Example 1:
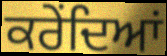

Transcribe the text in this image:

ਕਰੇਂਦਿਆਂ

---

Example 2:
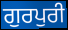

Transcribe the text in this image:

ਗੁਰਪੁਰੀ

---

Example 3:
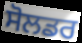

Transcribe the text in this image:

ਸੋਲਡਰ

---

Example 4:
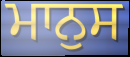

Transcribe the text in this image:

ਮਾਨੁਸ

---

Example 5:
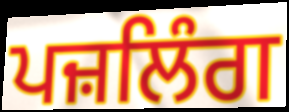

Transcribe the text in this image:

ਪਜ਼ਲਿੰਗ